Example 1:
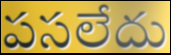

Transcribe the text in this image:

పసలేదు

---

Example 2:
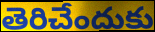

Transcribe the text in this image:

తెరిచేందుకు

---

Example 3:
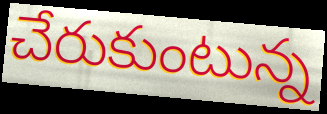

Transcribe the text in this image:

చేరుకుంటున్న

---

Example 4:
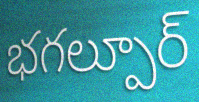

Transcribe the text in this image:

భగల్పూర్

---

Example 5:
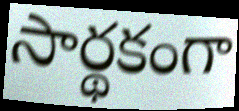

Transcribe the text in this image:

సార్థకంగా